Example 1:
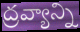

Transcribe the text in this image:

ద్రవ్యాన్ని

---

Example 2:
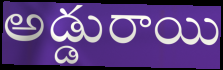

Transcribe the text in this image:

అడ్డురాయి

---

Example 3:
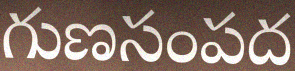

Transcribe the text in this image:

గుణసంపద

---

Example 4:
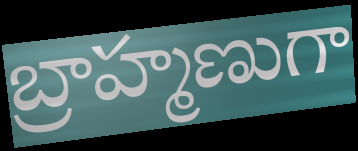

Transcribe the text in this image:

బ్రాహ్మణుగా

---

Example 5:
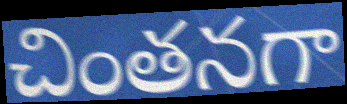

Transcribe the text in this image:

చింతనగా